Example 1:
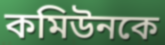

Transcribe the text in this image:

কমিউনকে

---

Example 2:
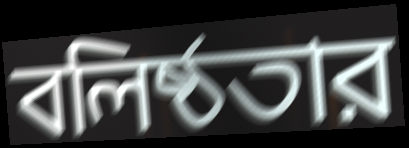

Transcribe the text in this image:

বলিষ্ঠতার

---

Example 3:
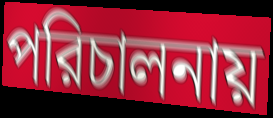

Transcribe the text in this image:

পরিচালনায়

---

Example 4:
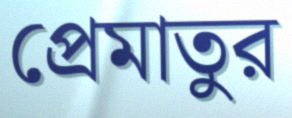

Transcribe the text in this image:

প্রেমাতুর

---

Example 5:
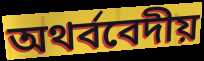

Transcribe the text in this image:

অথর্ববেদীয়